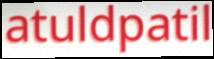
atuldpatil